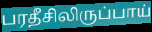
பரதீசிலிருப்பாய்